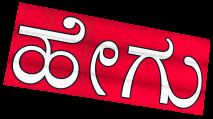
ಹೇಗು